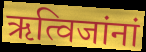
ऋत्विजांनां